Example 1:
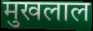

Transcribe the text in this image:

मुखलाल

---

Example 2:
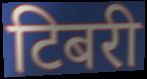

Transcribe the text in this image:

टिबरी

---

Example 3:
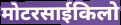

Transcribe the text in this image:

मोटरसाईकिलो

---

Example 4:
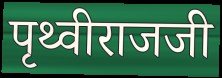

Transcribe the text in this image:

पृथ्वीराजजी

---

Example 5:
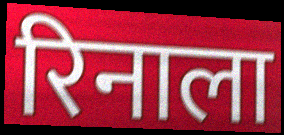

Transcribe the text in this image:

रिनाला